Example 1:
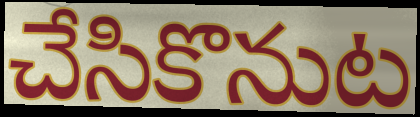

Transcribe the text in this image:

చేసికొనుట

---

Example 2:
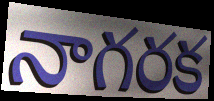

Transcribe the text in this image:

నాగరక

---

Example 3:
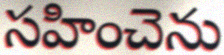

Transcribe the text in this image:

సహించెను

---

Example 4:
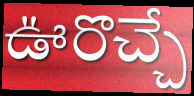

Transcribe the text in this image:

ఊరొచ్చే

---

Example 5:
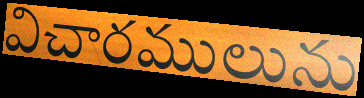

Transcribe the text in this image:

విచారములును